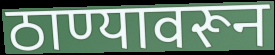
ठाण्यावरून